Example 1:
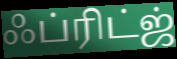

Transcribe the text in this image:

ஃப்ரிட்ஜ்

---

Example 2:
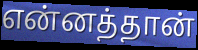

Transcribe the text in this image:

என்னத்தான்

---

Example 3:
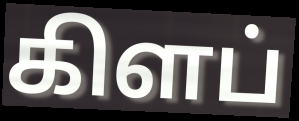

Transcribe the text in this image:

கிளப்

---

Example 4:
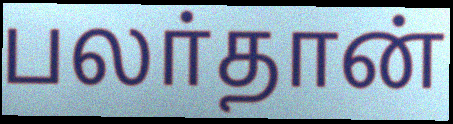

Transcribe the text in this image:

பலர்தான்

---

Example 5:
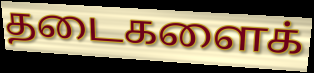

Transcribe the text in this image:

தடைகளைக்